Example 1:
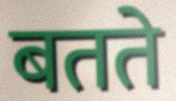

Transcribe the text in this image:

बतते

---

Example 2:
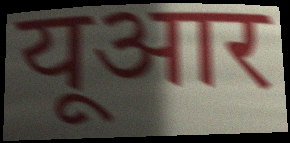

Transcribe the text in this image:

यूआर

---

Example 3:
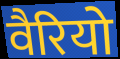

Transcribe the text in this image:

वैरियो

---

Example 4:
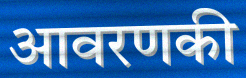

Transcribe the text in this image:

आवरणकी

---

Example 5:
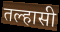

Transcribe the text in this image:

तल्हासी